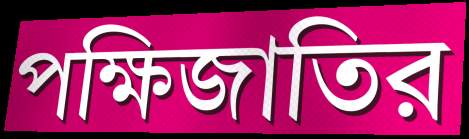
পক্ষিজাতির